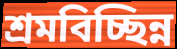
শ্রমবিচ্ছিন্ন